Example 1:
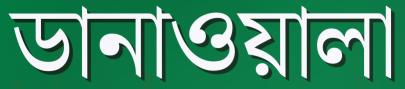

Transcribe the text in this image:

ডানাওয়ালা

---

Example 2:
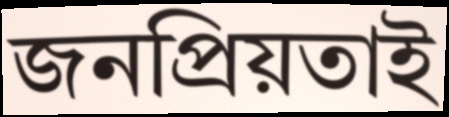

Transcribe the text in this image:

জনপ্রিয়তাই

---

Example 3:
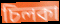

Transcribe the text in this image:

চিলকা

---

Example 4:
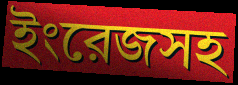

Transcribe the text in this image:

ইংরেজসহ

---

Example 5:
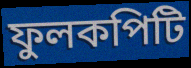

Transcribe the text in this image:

ফুলকপিটি